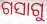
ଗସାଗୁ